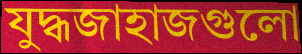
যুদ্ধজাহাজগুলো